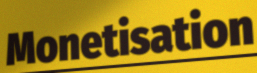
Monetisation